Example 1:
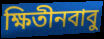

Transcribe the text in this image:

ক্ষিতীনবাবু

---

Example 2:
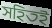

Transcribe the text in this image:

সহিতই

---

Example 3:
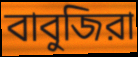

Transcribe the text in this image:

বাবুজিরা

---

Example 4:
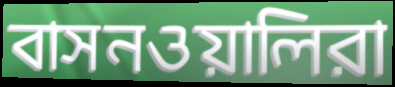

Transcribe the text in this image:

বাসনওয়ালিরা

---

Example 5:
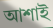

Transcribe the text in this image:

আশাই